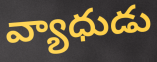
వ్యాధుడు